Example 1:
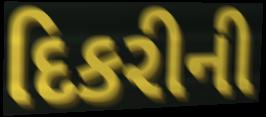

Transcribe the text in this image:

દિકરીની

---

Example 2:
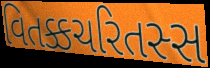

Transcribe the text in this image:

વિતક્કચરિતસ્સ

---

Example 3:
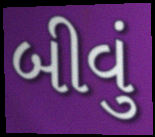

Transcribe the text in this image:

બીવું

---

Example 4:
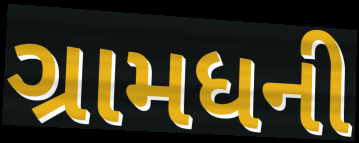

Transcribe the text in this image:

ગ્રામધની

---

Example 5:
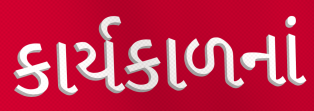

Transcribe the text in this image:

કાર્યકાળનાં